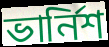
ভার্নিশ